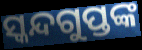
ସ୍କନ୍ଦଗୁପ୍ତଙ୍କ